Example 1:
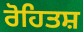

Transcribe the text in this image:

ਰੋਹਿਤਸ਼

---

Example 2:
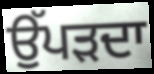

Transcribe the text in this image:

ਉੱਪੜਦਾ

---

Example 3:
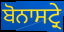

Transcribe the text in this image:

ਬੋਨਾਸਟ੍ਰੇ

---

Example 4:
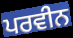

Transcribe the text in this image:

ਪਰਵੀਨ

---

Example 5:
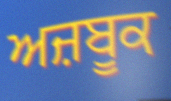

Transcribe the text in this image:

ਅਜ਼ਬੂਕ